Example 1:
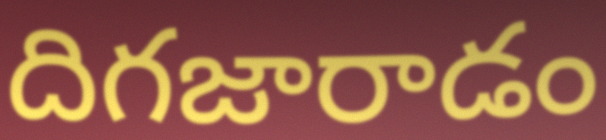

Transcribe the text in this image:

దిగజారాడం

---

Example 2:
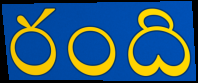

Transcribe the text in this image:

రంది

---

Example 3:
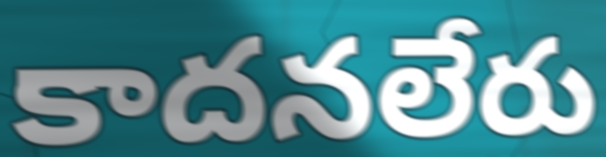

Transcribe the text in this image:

కాదనలేరు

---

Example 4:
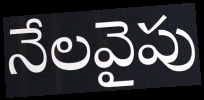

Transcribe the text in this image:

నేలవైపు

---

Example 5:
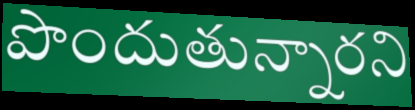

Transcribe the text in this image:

పొందుతున్నారని